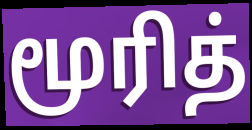
மூரித்